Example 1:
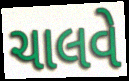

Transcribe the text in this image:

ચાલવે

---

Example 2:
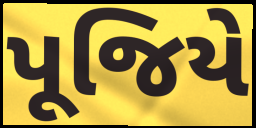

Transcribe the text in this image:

પૂજિયે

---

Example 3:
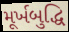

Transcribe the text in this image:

મૂર્ખબુદ્ધિ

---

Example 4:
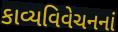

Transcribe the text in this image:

કાવ્યવિવેચનનાં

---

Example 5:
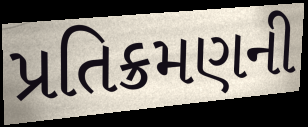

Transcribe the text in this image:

પ્રતિક્રમણની